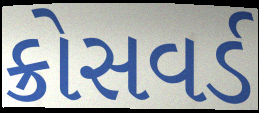
ક્રોસવર્ડ